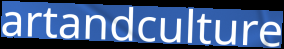
artandculture